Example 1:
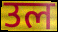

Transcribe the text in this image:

उल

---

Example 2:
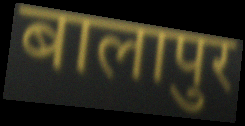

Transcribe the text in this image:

बालापुर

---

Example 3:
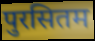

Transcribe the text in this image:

पुरसितम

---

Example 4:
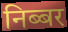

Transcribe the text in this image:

निब्बर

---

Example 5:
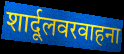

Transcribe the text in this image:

शार्दूलवरवाहना